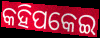
କହିପକେଇ